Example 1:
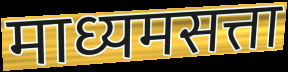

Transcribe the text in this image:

माध्यमसत्ता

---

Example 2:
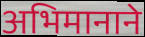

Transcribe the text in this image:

अभिमानाने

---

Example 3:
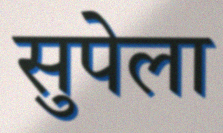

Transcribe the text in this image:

सुपेला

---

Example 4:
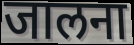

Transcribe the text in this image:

जालना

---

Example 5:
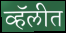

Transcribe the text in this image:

व्हॅलीत